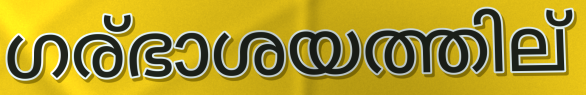
ഗര്ഭാശയത്തില്